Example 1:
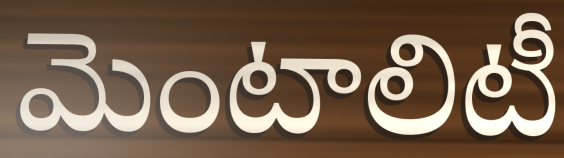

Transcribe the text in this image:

మెంటాలిటీ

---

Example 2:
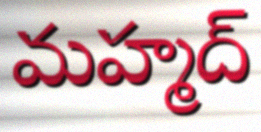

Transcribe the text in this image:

మహ్మద్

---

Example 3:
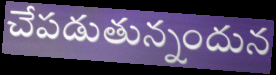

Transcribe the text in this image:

చేపడుతున్నందున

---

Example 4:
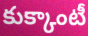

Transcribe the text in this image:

కుక్కాంటీ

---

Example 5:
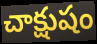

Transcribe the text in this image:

చాక్షుషం